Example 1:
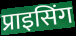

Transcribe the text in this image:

प्राइसिंग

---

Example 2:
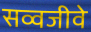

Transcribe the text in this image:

सव्वजीवे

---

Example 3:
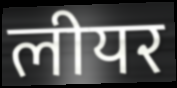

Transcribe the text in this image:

लीयर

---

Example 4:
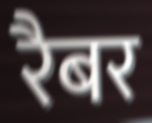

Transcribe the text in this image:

रैबर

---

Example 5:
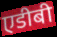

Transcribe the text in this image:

एडीबी